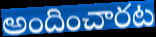
అందించారట